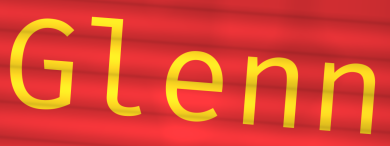
Glenn